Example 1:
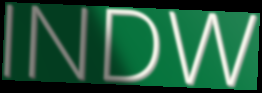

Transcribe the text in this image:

INDW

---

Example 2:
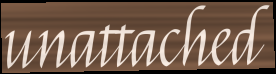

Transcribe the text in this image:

unattached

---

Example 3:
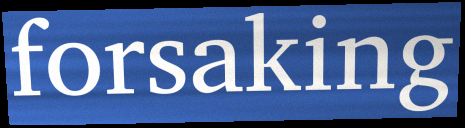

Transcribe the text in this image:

forsaking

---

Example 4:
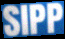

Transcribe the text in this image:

SIPP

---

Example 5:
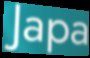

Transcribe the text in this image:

Japa